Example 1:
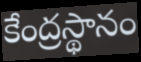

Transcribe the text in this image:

కేంద్రస్థానం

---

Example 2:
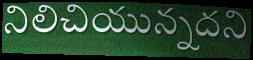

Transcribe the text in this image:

నిలిచియున్నదని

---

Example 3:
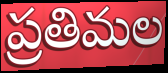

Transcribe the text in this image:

ప్రతిమల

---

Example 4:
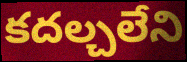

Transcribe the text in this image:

కదల్చలేని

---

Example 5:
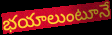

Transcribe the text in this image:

భయాలుంటూనే